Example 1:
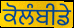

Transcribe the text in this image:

ਕੋਲੰਬੀਡੇ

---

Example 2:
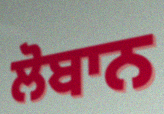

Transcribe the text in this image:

ਲੋਬਾਨ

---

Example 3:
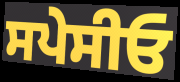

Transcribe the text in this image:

ਸਪੇਸੀਓ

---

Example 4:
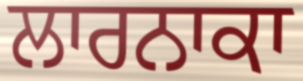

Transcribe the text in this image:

ਲਾਰਨਾਕਾ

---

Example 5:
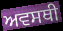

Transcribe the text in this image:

ਅਵਸਥੀ